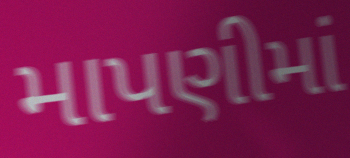
માપણીમાં